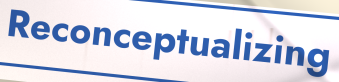
Reconceptualizing